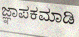
ಜ್ಞಾಪಕಮಾಡಿ